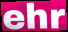
ehr